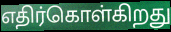
எதிர்கொள்கிறது